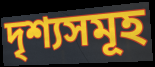
দৃশ্যসমূহ